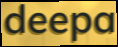
deepa